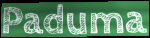
Paduma